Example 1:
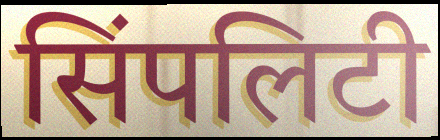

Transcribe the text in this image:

सिंपलिटी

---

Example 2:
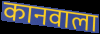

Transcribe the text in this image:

कानवाला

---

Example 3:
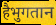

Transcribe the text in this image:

हैभुगतान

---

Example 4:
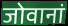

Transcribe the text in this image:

जोवानां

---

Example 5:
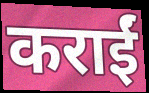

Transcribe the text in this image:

कराईं